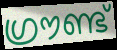
ഗ്രൗണ്ട്